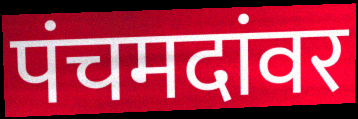
पंचमदांवर